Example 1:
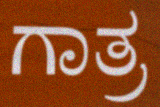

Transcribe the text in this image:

ಗಾತ್ರ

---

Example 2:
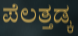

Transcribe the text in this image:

ಪೆಲತ್ತಡ್ಕ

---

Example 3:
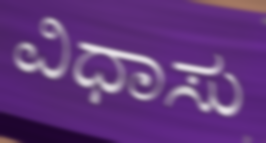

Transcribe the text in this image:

ವಿಧಾಸು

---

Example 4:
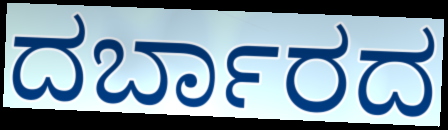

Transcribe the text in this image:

ದರ್ಬಾರದ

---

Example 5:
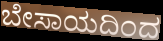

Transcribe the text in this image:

ಬೇಸಾಯದಿಂದ